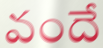
వందే